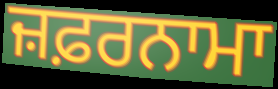
ਜ਼ਫ਼ਰਨਾਮਾ